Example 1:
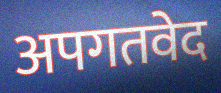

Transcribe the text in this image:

अपगतवेद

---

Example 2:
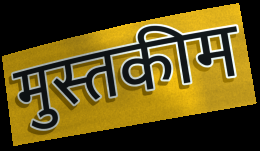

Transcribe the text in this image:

मुस्तकीम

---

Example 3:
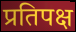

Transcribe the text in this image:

प्रतिपक्ष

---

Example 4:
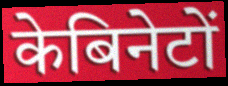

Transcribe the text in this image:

केबिनेटों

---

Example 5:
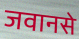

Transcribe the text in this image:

जवानसे